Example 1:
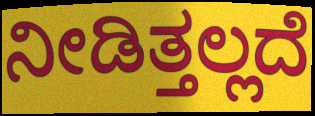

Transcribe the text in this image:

ನೀಡಿತ್ತಲ್ಲದೆ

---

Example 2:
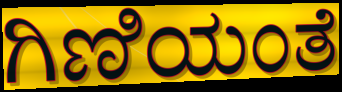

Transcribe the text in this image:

ಗಿಣಿಯಂತೆ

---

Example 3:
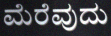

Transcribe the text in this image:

ಮೆರೆವುದು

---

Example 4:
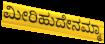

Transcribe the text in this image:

ಮೀರಿಹುದೇನಮ್ಮಾ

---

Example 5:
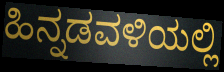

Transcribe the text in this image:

ಹಿನ್ನಡವಳಿಯಲ್ಲಿ